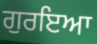
ਗੁਰਇਆ